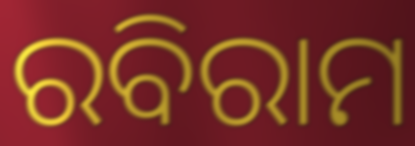
ରବିରାମ